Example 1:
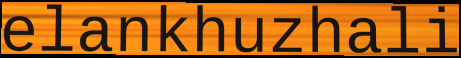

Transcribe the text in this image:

elankhuzhali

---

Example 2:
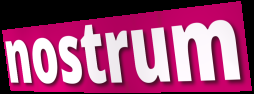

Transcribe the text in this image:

nostrum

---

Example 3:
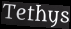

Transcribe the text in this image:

Tethys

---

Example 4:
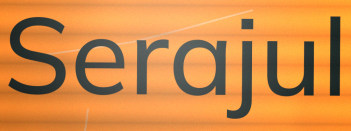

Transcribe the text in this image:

Serajul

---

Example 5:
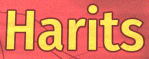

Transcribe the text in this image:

Harits